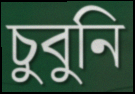
চুবুনি